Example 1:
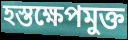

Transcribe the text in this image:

হস্তক্ষেপমুক্ত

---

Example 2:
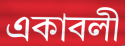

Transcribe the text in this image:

একাবলী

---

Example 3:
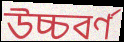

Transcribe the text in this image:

উচ্চবর্ণ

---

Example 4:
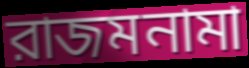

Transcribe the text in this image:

রাজমনামা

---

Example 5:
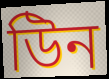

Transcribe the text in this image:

উিন